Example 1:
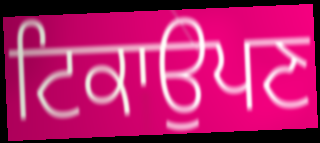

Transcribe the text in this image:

ਟਿਕਾਉਪਣ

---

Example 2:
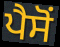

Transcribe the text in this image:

ਪੈਸੋਂ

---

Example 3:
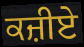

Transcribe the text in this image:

ਕਜ਼ੀਏ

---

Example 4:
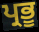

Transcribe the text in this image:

ਪ੍ਰਭੂ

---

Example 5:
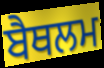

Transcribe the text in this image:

ਬੈਥਲਮ